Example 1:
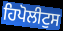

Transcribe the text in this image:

ਹਿਪੋਲੀਟੁਸ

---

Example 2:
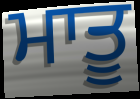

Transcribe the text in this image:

ਮਾਤੂ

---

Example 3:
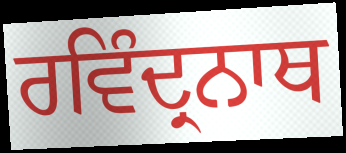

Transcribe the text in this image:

ਰਵਿੰਦ੍ਰਨਾਥ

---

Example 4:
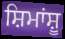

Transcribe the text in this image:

ਸ਼ਿਮਾਂਸ਼ੂ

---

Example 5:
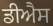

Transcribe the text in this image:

ਡੀਐਸ